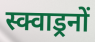
स्क्वाड्रनों